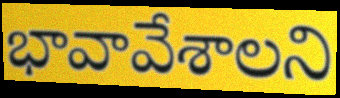
భావావేశాలని